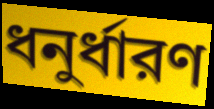
ধনুর্ধারণ